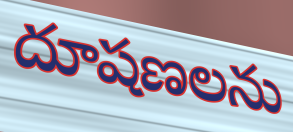
దూషణలను